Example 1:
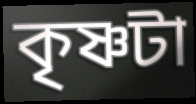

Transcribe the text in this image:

কৃষ্ণটা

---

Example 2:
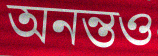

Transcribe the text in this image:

অনন্তও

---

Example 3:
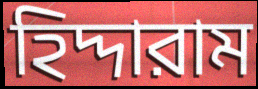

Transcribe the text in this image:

হিদ্দারাম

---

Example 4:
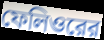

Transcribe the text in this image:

ফেলিওরের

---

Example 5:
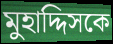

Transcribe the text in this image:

মুহাদ্দিসকে